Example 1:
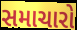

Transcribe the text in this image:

સમાચારો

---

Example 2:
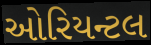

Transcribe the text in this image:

ઓરિયન્ટલ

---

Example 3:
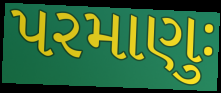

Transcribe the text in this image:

પરમાણુઃ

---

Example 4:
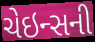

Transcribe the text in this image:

ચેઇન્સની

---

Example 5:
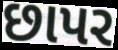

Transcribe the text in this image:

છાપર